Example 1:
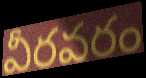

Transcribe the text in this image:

వీరవరం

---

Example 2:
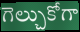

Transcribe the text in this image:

గెల్చుకోగా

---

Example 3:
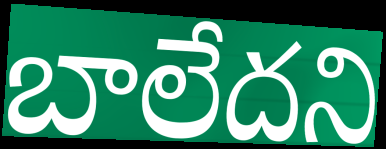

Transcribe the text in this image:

బాలేదని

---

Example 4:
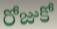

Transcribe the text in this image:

రోజుకో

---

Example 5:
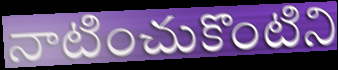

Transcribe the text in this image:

నాటించుకొంటిని